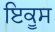
ਇਕੂਸ